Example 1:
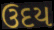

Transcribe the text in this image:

ઉદય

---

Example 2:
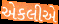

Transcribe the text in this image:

એકલીએ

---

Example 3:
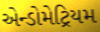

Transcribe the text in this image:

એન્ડોમેટ્રિયમ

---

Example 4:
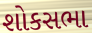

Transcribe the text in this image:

શોકસભા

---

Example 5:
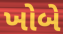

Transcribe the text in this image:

ખોબે